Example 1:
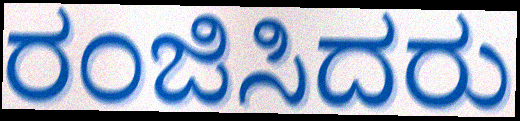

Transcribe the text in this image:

ರಂಜಿಸಿದರು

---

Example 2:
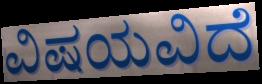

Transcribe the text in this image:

ವಿಷಯವಿದೆ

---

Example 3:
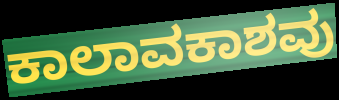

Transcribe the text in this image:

ಕಾಲಾವಕಾಶವು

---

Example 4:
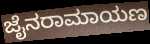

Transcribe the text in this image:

ಜೈನರಾಮಾಯಣ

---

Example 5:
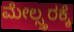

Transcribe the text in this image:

ಮೇಲ್ಸ್ತರಕ್ಕೆ